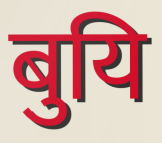
बुयि